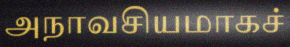
அநாவசியமாகச்